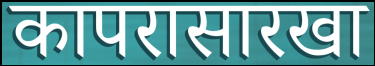
कापरासारखा